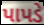
પાપડે